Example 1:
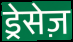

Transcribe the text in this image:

ड्रेसेज़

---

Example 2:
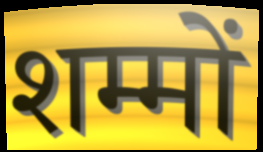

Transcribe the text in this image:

शम्मों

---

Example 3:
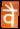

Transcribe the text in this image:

वै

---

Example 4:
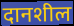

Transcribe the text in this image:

दानशील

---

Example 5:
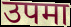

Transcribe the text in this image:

उपमा